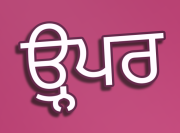
ਉ੍ਨਪਰ